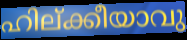
ഹില്ക്കീയാവു